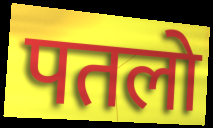
पतलो